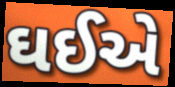
ઘઈએ